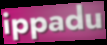
ippadu